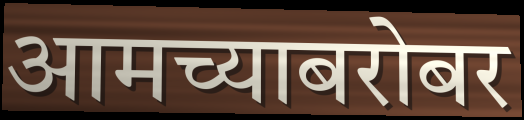
आमच्याबरोबर